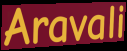
Aravali